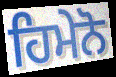
ਹਿਮੇਨੋ